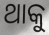
ଥାକୁ